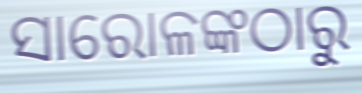
ସାରୋଳଙ୍କଠାରୁ